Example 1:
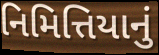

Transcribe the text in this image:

નિમિત્તિયાનું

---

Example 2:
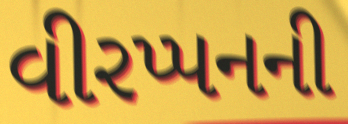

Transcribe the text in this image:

વીરપ્પનની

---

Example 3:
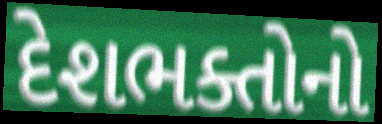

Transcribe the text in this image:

દેશભક્તોનો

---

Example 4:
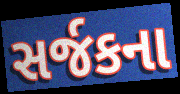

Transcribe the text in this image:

સર્જકના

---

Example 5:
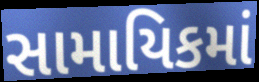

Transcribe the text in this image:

સામાયિકમાં